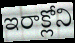
ఇరాక్లోని